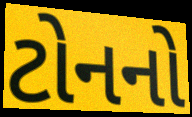
ટોનનો